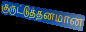
குருட்டுத்தனமான